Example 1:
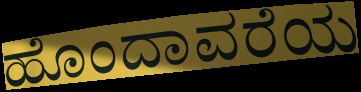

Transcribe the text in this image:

ಹೊಂದಾವರೆಯ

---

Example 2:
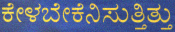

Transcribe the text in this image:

ಕೇಳಬೇಕೆನಿಸುತ್ತಿತ್ತು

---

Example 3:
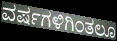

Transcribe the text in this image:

ವರ್ಷಗಳಿಗಿಂತಲೂ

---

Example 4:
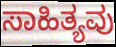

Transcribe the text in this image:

ಸಾಹಿತ್ಯವು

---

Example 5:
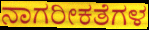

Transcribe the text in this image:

ನಾಗರೀಕತೆಗಳ